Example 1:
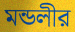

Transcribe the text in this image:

মন্ডলীর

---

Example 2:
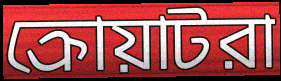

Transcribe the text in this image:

ক্রোয়াটরা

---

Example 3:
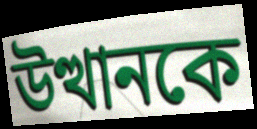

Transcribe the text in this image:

উত্থানকে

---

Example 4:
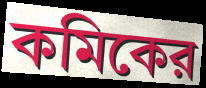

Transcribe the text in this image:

কমিকের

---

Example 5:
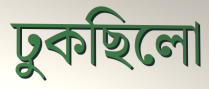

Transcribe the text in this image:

ঢুকছিলো